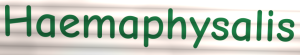
Haemaphysalis